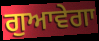
ਗੁਆਵੇਗਾ